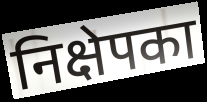
निक्षेपका